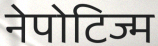
नेपोटिज्म